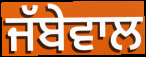
ਜੱਬੇਵਾਲ